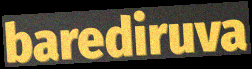
barediruva